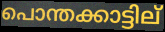
പൊന്തക്കാട്ടില്